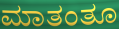
ಮಾತಂತೂ